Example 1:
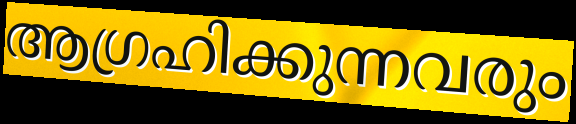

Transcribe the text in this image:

ആഗ്രഹിക്കുന്നവരും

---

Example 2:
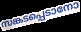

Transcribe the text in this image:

സങ്കടപ്പെടാനോ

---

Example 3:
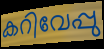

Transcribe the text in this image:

കറിവേപ്പു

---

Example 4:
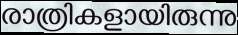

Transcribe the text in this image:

രാത്രികളായിരുന്നു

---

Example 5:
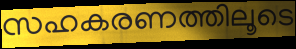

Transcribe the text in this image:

സഹകരണത്തിലൂടെ